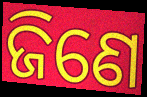
ଜିଣେ